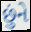
છુંને